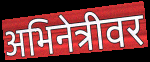
अभिनेत्रीवर